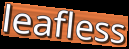
leafless